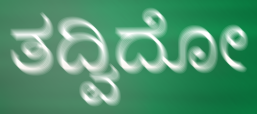
ತದ್ವಿದೋ